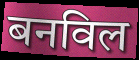
बनविल